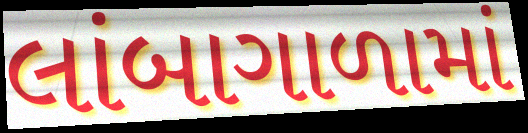
લાંબાગાળામાં